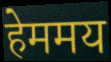
हेममय